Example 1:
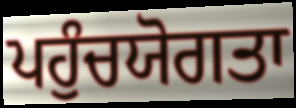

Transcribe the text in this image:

ਪਹੁੰਚਯੋਗਤਾ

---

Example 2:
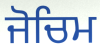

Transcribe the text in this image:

ਜੋਚਿਮ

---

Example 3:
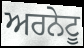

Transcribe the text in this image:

ਅਰਨੇਟੂ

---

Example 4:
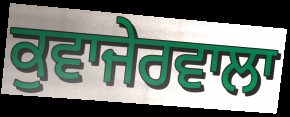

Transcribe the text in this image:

ਕੁਵਾਜੇਰਵਾਲਾ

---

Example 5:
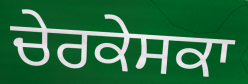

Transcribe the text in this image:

ਚੇਰਕੇਸਕਾ